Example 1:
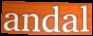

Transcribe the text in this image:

andal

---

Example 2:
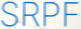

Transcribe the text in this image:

SRPF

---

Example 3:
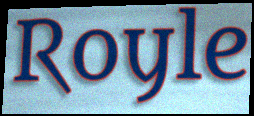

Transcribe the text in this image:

Royle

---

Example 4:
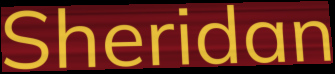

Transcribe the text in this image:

Sheridan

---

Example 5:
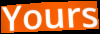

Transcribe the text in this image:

Yours